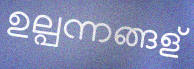
ഉല്പന്നങ്ങള്